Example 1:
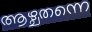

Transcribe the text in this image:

ആഴ്ചതന്നെ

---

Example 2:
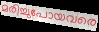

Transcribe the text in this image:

മരിച്ചുപോയവരെ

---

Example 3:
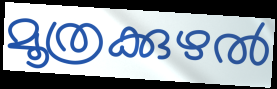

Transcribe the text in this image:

മൂത്രക്കുഴൽ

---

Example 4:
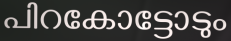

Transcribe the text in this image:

പിറകോട്ടോടും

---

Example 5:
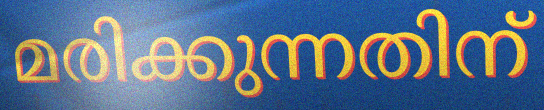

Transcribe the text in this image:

മരിക്കുന്നതിന്